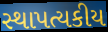
સ્થાપત્યકીય